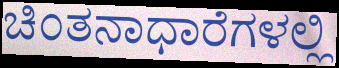
ಚಿಂತನಾಧಾರೆಗಳಲ್ಲಿ